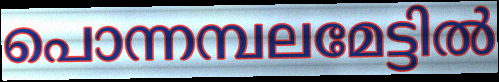
പൊന്നമ്പലമേട്ടിൽ